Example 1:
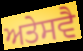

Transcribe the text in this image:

ਅਤੇਸਵੈ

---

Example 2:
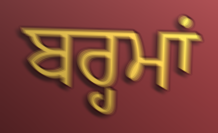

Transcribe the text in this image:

ਬਰ੍ਹਮਾਂ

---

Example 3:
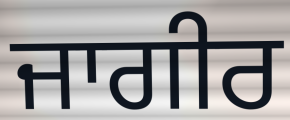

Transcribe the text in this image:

ਜਾਗੀਰ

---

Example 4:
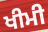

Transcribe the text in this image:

ਖੀਮੀ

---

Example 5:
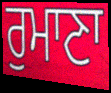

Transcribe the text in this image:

ਰੁਮਾਣਾ